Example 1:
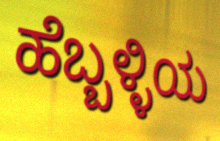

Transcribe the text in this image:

ಹೆಬ್ಬಳ್ಳಿಯ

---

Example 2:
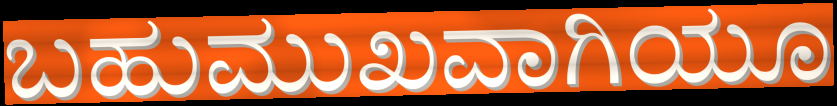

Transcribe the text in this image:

ಬಹುಮುಖವಾಗಿಯೂ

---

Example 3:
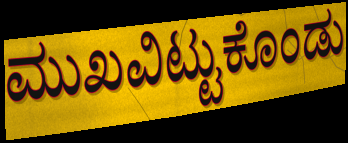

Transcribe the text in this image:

ಮುಖವಿಟ್ಟುಕೊಂಡು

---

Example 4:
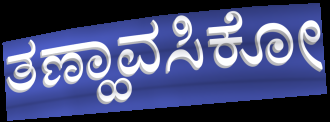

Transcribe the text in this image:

ತಣ್ಹಾವಸಿಕೋ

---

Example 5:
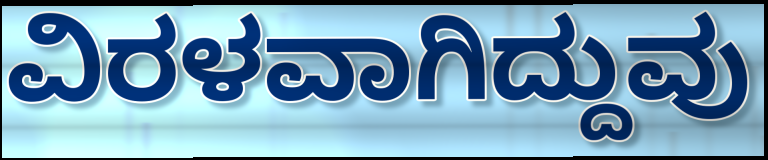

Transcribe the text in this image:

ವಿರಳವಾಗಿದ್ದುವು